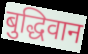
बुद्धिवान